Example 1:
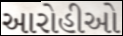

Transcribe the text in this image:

આરોહીઓ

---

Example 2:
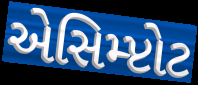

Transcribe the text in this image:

એસિમ્પ્ટોટ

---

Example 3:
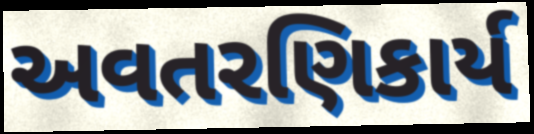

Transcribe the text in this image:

અવતરણિકાર્ય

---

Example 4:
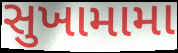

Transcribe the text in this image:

સુખામામા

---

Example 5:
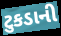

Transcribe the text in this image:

ટુકડાની